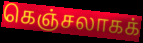
கெஞ்சலாகக்